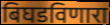
बिघडविणारा